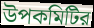
উপকমিটির